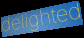
delighted